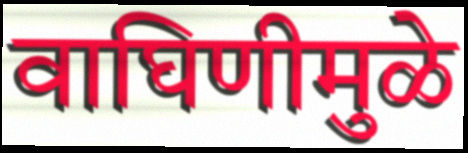
वाघिणीमुळे